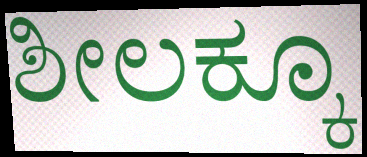
ಶೀಲಕ್ಕೂ